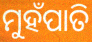
ମୁହଁପାତି